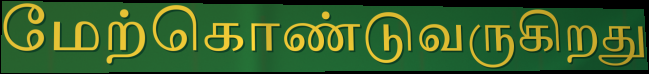
மேற்கொண்டுவருகிறது